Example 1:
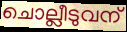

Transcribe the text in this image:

ചൊല്ലീടുവന്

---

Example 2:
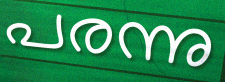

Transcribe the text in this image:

പരന്നു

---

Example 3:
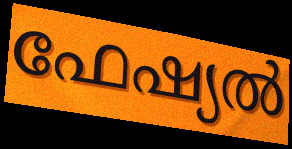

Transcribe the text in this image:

ഫേഷ്യൽ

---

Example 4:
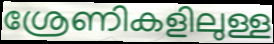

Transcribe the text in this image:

ശ്രേണികളിലുള്ള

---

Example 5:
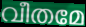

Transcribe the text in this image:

വീതമേ